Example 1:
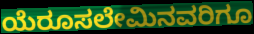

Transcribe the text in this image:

ಯೆರೂಸಲೇಮಿನವರಿಗೂ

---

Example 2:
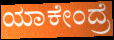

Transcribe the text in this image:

ಯಾಕೇಂದ್ರೆ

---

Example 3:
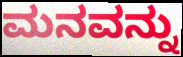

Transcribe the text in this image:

ಮನವನ್ನು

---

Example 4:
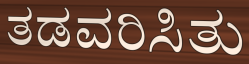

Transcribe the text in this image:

ತಡವರಿಸಿತು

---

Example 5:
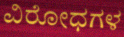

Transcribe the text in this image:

ವಿರೋಧಗಳ